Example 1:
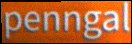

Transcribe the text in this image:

penngal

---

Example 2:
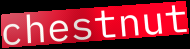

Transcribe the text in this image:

chestnut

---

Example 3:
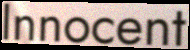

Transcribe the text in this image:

Innocent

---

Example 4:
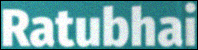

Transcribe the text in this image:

Ratubhai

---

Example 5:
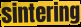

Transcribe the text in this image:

sintering